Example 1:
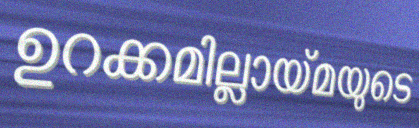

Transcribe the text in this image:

ഉറക്കമില്ലായ്മയുടെ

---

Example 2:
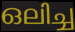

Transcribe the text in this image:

ഒലിച്ച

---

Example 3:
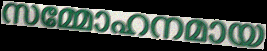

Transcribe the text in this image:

സമ്മോഹനമായ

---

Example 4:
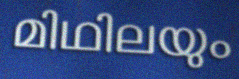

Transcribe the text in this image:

മിഥിലയും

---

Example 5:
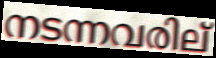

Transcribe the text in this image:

നടന്നവരില്